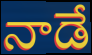
నాడే